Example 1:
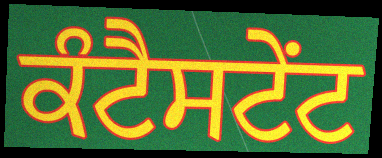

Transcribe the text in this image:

ਕੰਟੈਸਟੇਂਟ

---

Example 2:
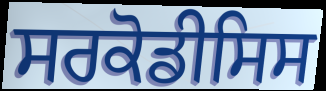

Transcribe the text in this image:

ਸਰਕੋਡੀਸਿਸ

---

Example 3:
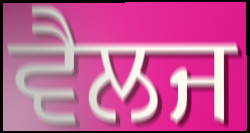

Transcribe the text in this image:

ਵੈਲਜ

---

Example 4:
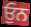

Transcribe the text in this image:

ਓੁਨ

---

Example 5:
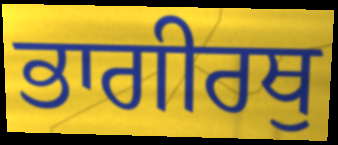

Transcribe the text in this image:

ਭਾਗੀਰਥੁ